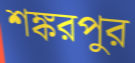
শঙ্করপুর